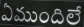
ఏముందిలే